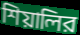
শিয়ালির